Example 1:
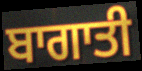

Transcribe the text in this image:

ਬਾਗਾਤੀ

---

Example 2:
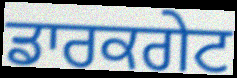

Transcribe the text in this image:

ਡਾਰਕਗੇਟ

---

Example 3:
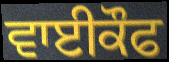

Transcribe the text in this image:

ਵਾਈਕੌਫ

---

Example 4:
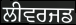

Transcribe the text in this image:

ਲੀਵਰਜਡ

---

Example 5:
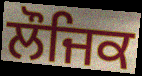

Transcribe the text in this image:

ਲੌਜਿਕ